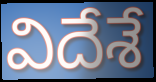
విదేశే